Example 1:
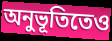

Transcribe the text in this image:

অনুভূতিতেও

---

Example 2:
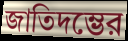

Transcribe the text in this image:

জাতিদম্ভের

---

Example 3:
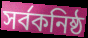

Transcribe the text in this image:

সর্বকনিষ্ঠ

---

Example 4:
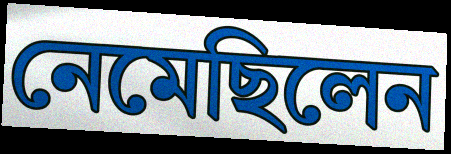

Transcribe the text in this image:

নেমেছিলেন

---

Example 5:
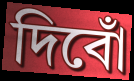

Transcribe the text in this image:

দিবোঁ